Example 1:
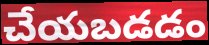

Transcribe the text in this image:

చేయబడడం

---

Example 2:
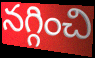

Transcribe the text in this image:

నగ్గించి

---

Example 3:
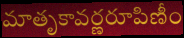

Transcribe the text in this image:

మాతృకావర్ణరూపిణీం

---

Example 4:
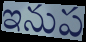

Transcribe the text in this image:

ఇనుప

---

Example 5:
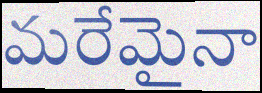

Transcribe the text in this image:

మరేమైనా